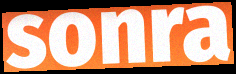
sonra